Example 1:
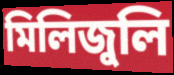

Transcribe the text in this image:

মিলিজুলি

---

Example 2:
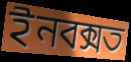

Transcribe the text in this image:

ইনবক্সত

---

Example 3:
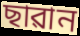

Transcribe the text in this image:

ছাৱান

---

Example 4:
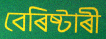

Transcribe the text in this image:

বেৰিষ্টাৰী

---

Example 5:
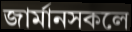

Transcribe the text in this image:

জাৰ্মানসকলে